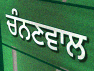
ਚੰਨਣਵਾਲ